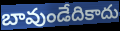
బావుండేదికాదు